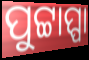
ପୁଟ୍ଟାପ୍ପା